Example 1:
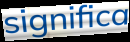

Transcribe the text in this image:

significa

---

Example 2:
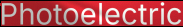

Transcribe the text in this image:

Photoelectric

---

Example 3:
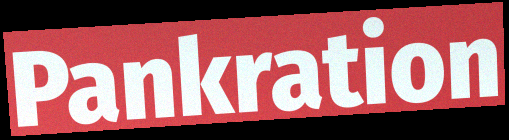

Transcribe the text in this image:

Pankration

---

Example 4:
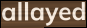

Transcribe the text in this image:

allayed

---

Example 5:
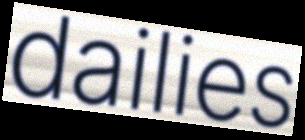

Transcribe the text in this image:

dailies